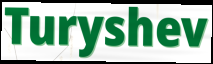
Turyshev